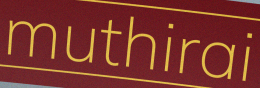
muthirai